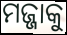
ମଜ୍ଜାକୁ